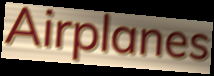
Airplanes